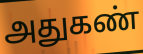
அதுகண்